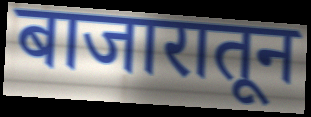
बाजारातून